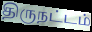
திருநட்டம்